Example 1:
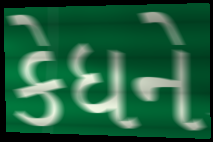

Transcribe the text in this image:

કેધને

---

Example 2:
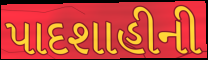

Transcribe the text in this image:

પાદશાહીની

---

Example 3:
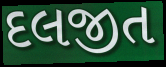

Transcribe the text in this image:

દલજીત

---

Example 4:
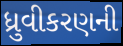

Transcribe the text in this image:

ધ્રુવીકરણની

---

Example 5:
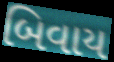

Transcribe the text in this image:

બિવાય